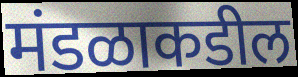
मंडळाकडील